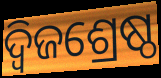
ଦ୍ୱିଜଶ୍ରେଷ୍ଠ